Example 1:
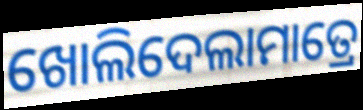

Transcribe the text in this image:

ଖୋଲିଦେଲାମାତ୍ରେ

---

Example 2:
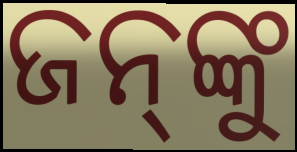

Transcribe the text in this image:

ଜନ୍‍ଙ୍କୁ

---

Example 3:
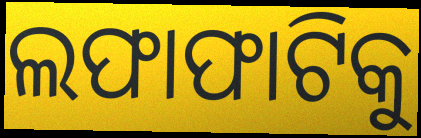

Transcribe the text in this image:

ଲଫାଫାଟିକୁ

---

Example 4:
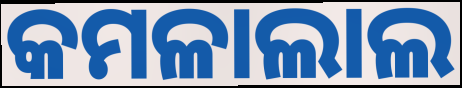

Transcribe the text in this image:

କମଳାଲାଲ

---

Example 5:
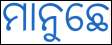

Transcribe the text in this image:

ମାନୁଛେ